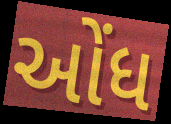
ઓંધ